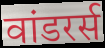
वांडरर्स